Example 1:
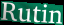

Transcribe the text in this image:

Rutin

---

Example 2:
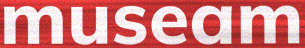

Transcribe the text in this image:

museam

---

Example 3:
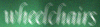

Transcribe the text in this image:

wheelchairs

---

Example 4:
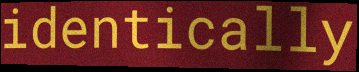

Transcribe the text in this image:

identically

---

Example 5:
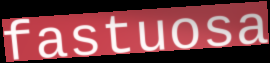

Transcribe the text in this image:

fastuosa